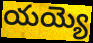
యయ్యె